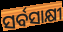
ସର୍ବସାକ୍ଷୀ